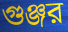
গুঞ্জর